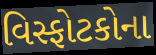
વિસ્ફોટકોના